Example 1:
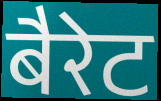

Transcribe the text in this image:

बैरेट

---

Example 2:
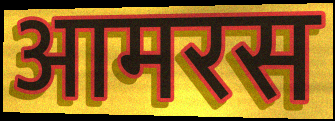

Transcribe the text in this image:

आमरस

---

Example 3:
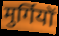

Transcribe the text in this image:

मुर्गियों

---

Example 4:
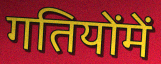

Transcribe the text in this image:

गतियोंमें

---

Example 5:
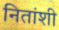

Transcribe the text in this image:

नितांशी